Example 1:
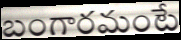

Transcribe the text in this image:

బంగారమంటే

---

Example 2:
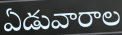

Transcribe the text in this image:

ఏడువారాల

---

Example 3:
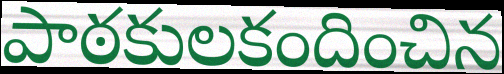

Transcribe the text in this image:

పాఠకులకందించిన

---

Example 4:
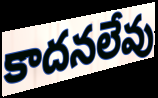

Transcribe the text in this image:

కాదనలేవు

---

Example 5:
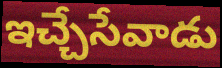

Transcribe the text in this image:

ఇచ్చేసేవాడు